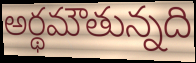
అర్థమౌతున్నది